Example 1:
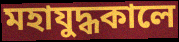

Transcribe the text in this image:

মহাযুদ্ধকালে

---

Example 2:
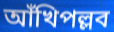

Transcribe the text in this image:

আঁখিপল্লব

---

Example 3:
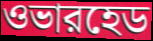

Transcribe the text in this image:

ওভারহেড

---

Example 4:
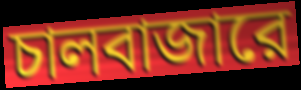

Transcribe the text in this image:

চালবাজারে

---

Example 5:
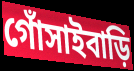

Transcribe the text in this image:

গোঁসাইবাড়ি